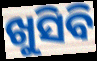
ଖୁସିବି